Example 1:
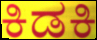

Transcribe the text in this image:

ಕಿಡಕಿ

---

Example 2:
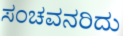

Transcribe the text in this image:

ಸಂಚವನರಿದು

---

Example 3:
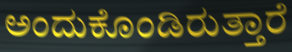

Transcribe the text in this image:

ಅಂದುಕೊಂಡಿರುತ್ತಾರೆ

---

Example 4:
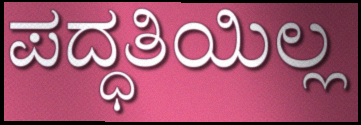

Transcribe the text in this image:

ಪದ್ಧತಿಯಿಲ್ಲ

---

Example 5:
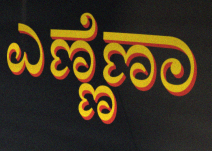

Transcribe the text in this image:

ಎಣ್ಣೆಣಾ